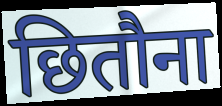
छितौना